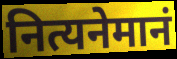
नित्यनेमानं